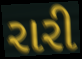
રારી